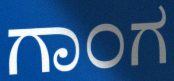
ಗಾಂಗ